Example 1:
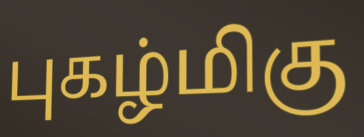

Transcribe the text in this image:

புகழ்மிகு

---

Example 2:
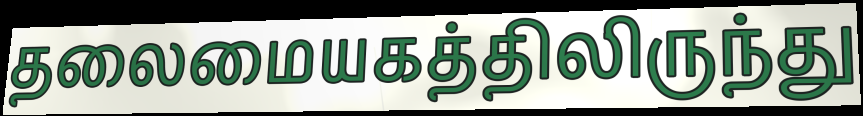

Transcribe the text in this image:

தலைமையகத்திலிருந்து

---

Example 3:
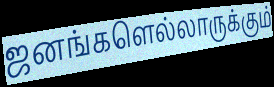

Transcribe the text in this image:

ஜனங்களெல்லாருக்கும்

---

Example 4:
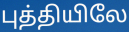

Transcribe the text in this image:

புத்தியிலே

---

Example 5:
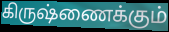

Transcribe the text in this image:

கிருஷ்ணைக்கும்